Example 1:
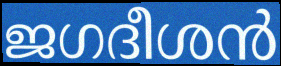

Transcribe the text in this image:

ജഗദീശൻ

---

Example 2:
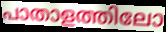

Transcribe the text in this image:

പാതാളത്തിലോ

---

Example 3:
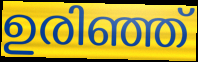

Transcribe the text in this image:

ഉരിഞ്ഞ്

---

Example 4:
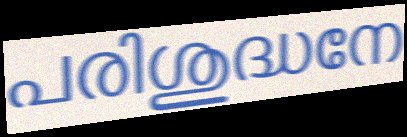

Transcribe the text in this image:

പരിശുദ്ധനേ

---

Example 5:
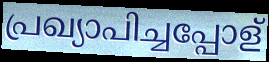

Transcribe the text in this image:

പ്രഖ്യാപിച്ചപ്പോള്